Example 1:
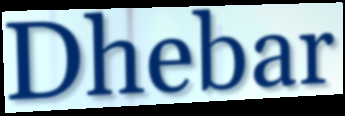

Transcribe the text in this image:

Dhebar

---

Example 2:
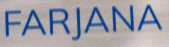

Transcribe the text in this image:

FARJANA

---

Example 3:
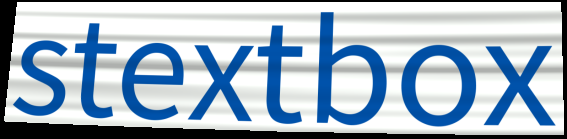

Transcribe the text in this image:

stextbox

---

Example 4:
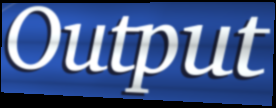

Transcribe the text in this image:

Output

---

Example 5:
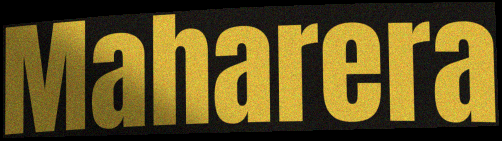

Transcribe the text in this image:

Maharera